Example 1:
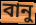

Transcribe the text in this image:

বানু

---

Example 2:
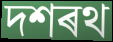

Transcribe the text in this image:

দশৰথ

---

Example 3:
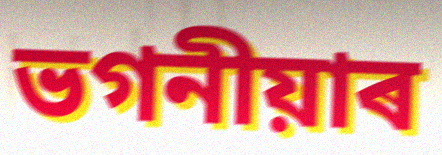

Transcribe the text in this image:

ভগনীয়াৰ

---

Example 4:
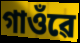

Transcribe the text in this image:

গাওঁৱে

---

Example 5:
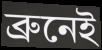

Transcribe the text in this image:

ব্ৰুনেই